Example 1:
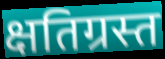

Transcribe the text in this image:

क्षतिग्रस्त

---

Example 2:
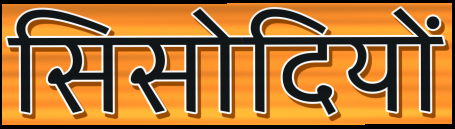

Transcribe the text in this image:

सिसोदियों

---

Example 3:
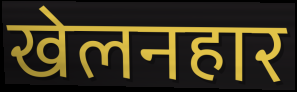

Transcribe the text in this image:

खेलनहार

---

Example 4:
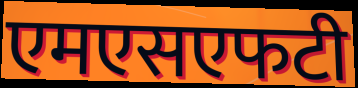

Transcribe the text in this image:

एमएसएफटी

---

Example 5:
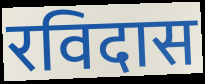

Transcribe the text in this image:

रविदास